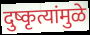
दुष्कृत्यांमुळे